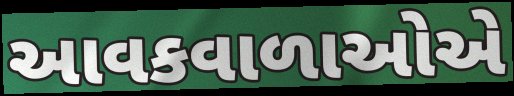
આવકવાળાઓએ